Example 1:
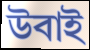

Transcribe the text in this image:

উবাই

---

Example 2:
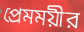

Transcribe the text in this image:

প্রেমময়ীর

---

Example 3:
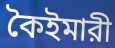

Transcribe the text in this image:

কৈইমারী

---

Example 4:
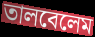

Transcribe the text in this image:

তালবেলেম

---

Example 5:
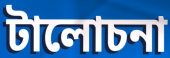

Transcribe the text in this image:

টালোচনা